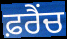
ਫ਼ਰੈਂਚ